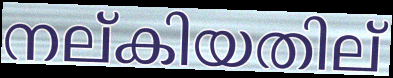
നല്കിയതില്